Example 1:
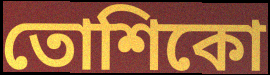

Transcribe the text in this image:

তোশিকো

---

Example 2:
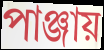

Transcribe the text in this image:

পাঞ্জায়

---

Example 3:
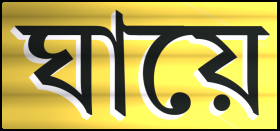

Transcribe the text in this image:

ঘায়ে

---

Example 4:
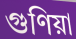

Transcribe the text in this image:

গুণিয়া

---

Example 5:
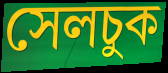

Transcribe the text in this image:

সেলচুক